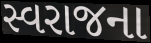
સ્વરાજના